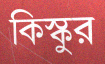
কিস্কুর